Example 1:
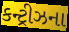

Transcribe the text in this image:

કન્ટ્રીઝના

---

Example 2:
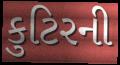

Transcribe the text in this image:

કુટિરની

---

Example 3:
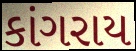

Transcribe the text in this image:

કાંગરાય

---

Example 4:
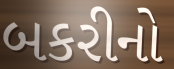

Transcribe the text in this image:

બકરીનો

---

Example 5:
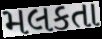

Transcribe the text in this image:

મલકતા